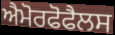
ਐਮੋਰਫੋਫੈਲਸ